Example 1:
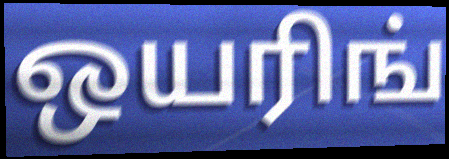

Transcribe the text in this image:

ஒயரிங்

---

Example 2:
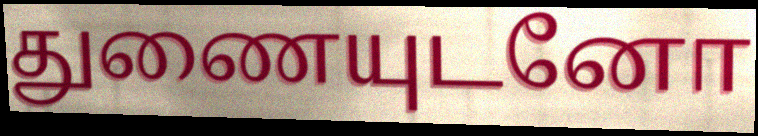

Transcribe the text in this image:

துணையுடனோ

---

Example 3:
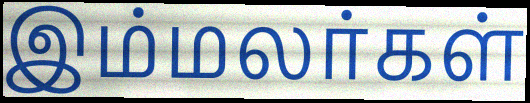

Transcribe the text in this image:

இம்மலர்கள்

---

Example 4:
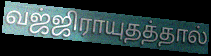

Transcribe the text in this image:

வஜ்ஜிராயுதத்தால்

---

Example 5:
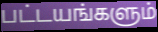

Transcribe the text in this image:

பட்டயங்களும்